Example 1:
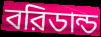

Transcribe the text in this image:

বরিডান্ড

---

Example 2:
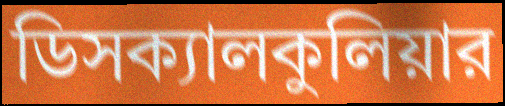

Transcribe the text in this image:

ডিসক্যালকুলিয়ার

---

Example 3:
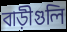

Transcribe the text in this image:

বাড়ীগুলি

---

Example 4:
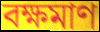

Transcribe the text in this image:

বক্ষমাণ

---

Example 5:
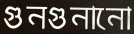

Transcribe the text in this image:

গুনগুনানো